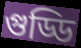
গুড্ডি